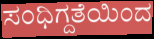
ಸಂಧಿಗ್ದತೆಯಿಂದ